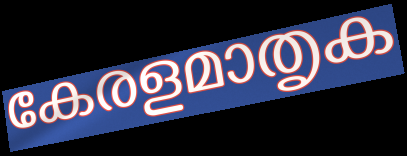
കേരളമാതൃക